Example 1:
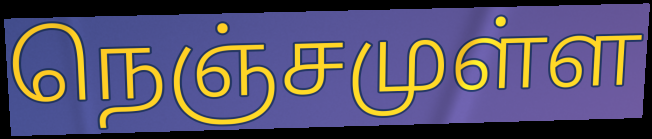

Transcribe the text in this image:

நெஞ்சமுள்ள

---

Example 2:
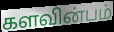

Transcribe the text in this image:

களவின்பம்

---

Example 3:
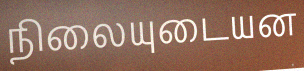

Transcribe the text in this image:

நிலையுடையன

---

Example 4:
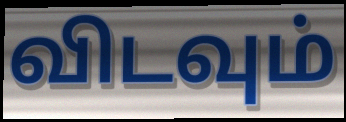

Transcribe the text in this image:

விடவும்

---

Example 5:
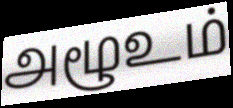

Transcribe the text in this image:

அழூஉம்